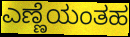
ಎಣ್ಣೆಯಂತಹ